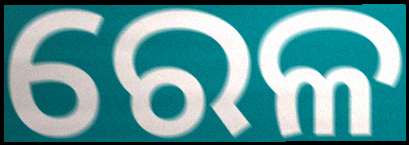
ରେଳ